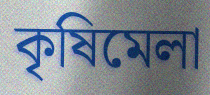
কৃষিমেলা